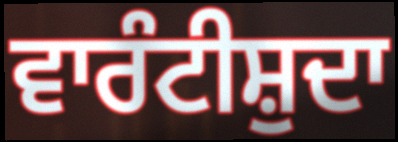
ਵਾਰੰਟੀਸ਼ੁਦਾ